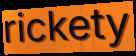
rickety